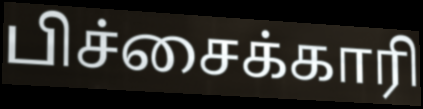
பிச்சைக்காரி